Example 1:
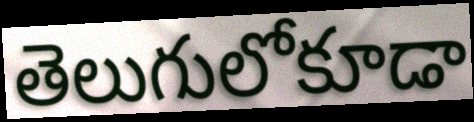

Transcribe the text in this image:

తెలుగులోకూడా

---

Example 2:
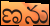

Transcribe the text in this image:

ణను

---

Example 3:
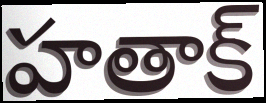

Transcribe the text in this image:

హతాక్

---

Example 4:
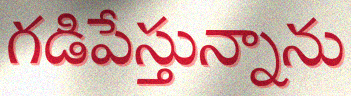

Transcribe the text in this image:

గడిపేస్తున్నాను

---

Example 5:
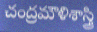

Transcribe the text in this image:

చంద్రమౌళిశాస్త్రి